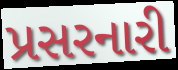
પ્રસરનારી